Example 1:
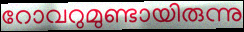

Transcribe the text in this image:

റോവറുമുണ്ടായിരുന്നു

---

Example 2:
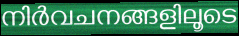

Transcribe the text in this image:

നിർവചനങ്ങളിലൂടെ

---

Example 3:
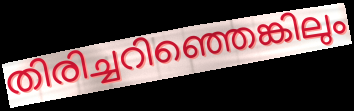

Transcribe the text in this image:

തിരിച്ചറിഞ്ഞെങ്കിലും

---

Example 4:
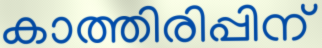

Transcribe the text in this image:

കാത്തിരിപ്പിന്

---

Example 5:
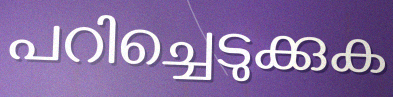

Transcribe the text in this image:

പറിച്ചെടുക്കുക